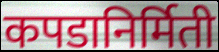
कपडानिर्मिती